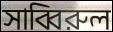
সাব্বিরুল